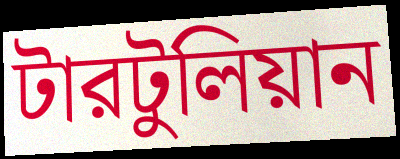
টারটুলিয়ান